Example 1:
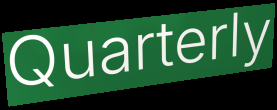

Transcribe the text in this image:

Quarterly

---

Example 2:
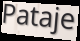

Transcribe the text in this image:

Pataje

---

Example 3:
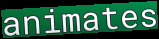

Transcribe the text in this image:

animates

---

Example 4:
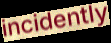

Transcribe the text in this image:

incidently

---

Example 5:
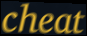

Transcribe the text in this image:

cheat